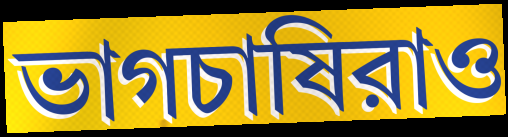
ভাগচাষিরাও